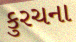
કુરચના